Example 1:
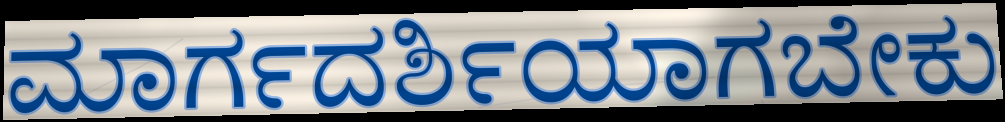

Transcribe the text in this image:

ಮಾರ್ಗದರ್ಶಿಯಾಗಬೇಕು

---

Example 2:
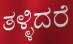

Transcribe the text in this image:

ತಳ್ಳಿದರೆ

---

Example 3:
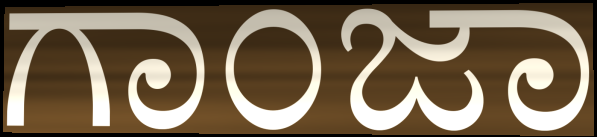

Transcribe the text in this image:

ಗಾಂಜಾ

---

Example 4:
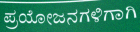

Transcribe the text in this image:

ಪ್ರಯೋಜನಗಳಿಗಾಗಿ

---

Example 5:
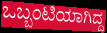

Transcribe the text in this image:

ಒಬ್ಬಂಟಿಯಾಗಿದ್ದ